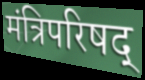
मंत्रिपरिषद्